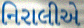
નિરાલીએ